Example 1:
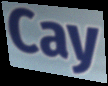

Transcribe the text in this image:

Cay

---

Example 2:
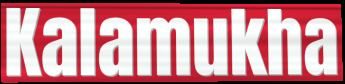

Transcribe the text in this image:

Kalamukha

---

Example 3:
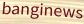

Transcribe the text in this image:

banginews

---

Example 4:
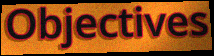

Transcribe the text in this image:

Objectives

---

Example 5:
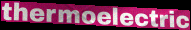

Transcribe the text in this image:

thermoelectric